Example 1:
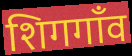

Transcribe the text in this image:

शिगगाँव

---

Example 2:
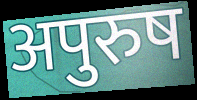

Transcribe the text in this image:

अपुरुष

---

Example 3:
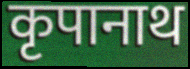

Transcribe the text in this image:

कृपानाथ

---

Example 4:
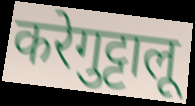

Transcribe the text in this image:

करेगुट्टालू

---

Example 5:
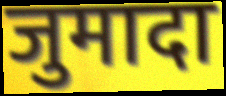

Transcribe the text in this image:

जुमादा